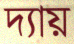
দ্যায়